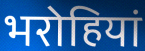
भरोहियां